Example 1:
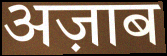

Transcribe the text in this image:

अज़ाब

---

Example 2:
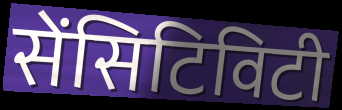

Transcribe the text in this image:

सेंसिटिविटी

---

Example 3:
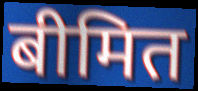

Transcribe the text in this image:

बीमित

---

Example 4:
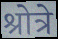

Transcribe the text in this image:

श्रोत्रे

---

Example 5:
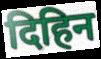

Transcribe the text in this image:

दिहिन